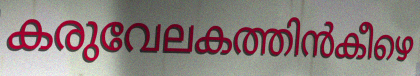
കരുവേലകത്തിൻകീഴെ